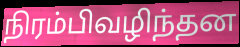
நிரம்பிவழிந்தன